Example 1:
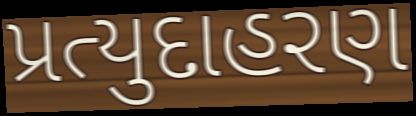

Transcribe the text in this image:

પ્રત્યુદાહરણ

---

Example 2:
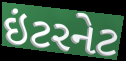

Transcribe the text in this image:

ઇંટરનેટ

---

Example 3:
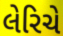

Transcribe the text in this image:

લેરિચે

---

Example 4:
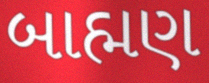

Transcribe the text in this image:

બાહ્મણ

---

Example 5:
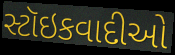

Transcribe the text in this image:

સ્ટૉઇકવાદીઓ